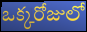
ఒక్కరోజులో